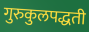
गुरुकुलपद्धती